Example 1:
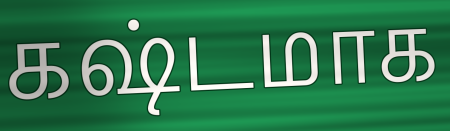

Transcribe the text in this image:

கஷ்டமாக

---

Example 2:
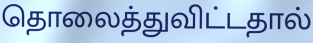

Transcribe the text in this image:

தொலைத்துவிட்டதால்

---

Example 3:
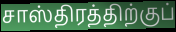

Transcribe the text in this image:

சாஸ்திரத்திற்குப்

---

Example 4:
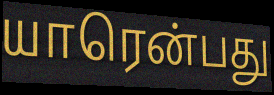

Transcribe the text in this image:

யாரென்பது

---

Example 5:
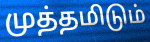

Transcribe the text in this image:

முத்தமிடும்